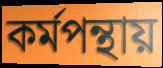
কর্মপন্থায়